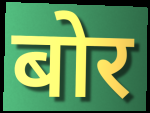
बोर